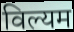
विल्यम